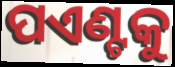
ପଏଣ୍ଟକୁ